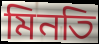
মিনতি